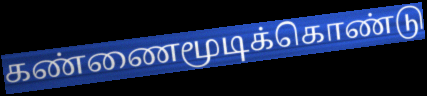
கண்ணைமூடிக்கொண்டு